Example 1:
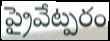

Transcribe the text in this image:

ప్రైవేట్పరం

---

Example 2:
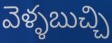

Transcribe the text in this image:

వెళ్ళబుచ్చి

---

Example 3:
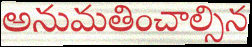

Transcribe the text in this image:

అనుమతించాల్సిన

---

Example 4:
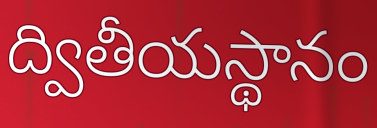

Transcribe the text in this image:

ద్వితీయస్థానం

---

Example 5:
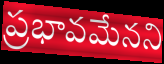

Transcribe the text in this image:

ప్రభావమేనని